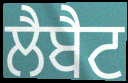
ਲੈਬੈਟ